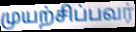
முயற்சிப்பவர்